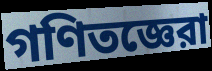
গণিতজ্ঞেরা